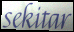
sekitar